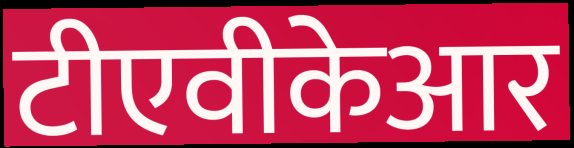
टीएवीकेआर